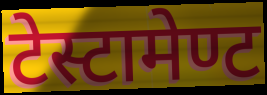
टेस्टामेण्ट